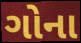
ગોના